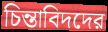
চিন্তাবিদদের